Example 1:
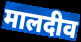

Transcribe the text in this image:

मालदीव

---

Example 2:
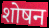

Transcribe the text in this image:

शोषन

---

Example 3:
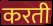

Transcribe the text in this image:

करती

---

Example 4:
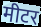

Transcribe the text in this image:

मीटर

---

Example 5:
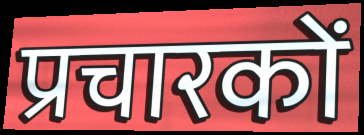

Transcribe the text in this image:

प्रचारकों